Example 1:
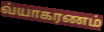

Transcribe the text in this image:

வ்யாகரணம்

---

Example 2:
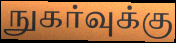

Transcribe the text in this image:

நுகர்வுக்கு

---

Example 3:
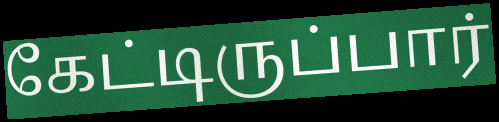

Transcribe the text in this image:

கேட்டிருப்பார்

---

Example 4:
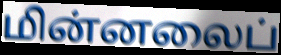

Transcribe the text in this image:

மின்னலைப்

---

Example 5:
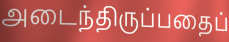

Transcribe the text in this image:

அடைந்திருப்பதைப்